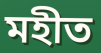
মহীত